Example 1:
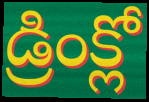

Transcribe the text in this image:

డ్రింక్లో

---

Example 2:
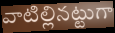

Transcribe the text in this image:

వాటిల్లినట్టుగా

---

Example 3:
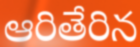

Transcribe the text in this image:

ఆరితేరిన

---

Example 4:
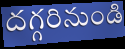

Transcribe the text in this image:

దగ్గరినుండి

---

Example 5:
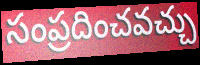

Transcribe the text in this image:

సంప్రదించవచ్చు